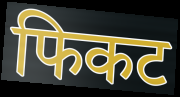
फिकट